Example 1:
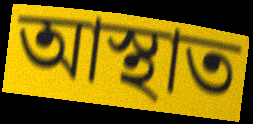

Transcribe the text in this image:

আস্থাত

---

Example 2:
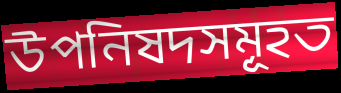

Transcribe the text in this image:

উপনিষদসমূহত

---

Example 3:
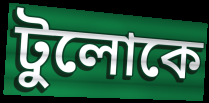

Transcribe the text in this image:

টুলোকে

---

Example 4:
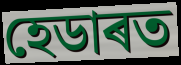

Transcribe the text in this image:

হেডাৰত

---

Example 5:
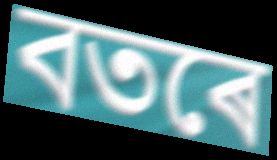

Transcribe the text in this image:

বতৰে